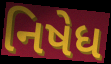
નિષેધ